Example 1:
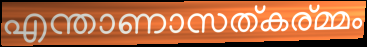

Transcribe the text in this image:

എന്താണാസത്കര്മ്മം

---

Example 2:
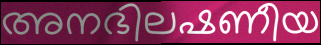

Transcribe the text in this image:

അനഭിലഷണീയ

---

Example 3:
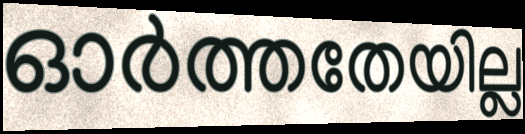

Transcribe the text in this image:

ഓർത്തതേയില്ല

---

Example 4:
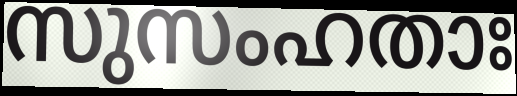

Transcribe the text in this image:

സുസംഹതാഃ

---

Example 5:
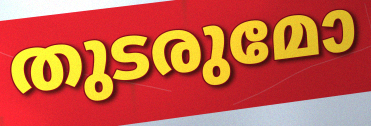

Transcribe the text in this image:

തുടരുമോ